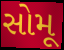
સોમૂ